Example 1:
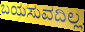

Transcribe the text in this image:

ಬಯಸುವದಿಲ್ಲ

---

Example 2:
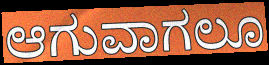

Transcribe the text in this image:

ಆಗುವಾಗಲೂ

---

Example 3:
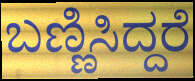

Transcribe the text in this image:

ಬಣ್ಣಿಸಿದ್ದರೆ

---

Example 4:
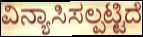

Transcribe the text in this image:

ವಿನ್ಯಾಸಿಸಲ್ಪಟ್ಟಿದೆ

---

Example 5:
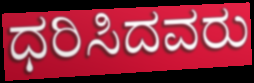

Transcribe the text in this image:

ಧರಿಸಿದವರು